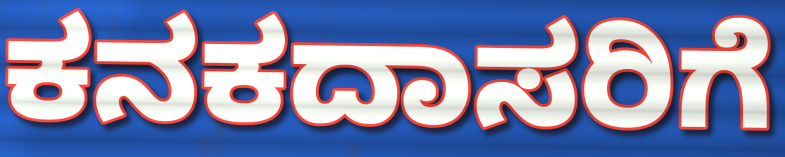
ಕನಕದಾಸರಿಗೆ